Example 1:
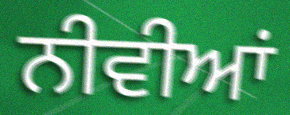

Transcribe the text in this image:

ਨੀਵੀਆਂ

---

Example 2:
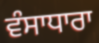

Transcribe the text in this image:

ਵੰਸਾਧਾਰਾ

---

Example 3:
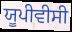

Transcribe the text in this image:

ਯੂਪੀਵੀਸੀ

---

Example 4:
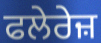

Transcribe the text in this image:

ਫਲੇਰੇਜ਼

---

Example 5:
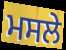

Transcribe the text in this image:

ਮਸਲੇ